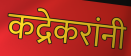
कद्रेकरांनी